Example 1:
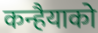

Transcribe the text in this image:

कन्हैयाको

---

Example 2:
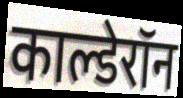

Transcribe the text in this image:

काल्डेरॉन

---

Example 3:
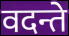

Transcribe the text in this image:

वदन्ते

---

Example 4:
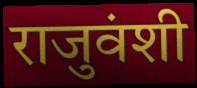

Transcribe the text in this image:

राजुवंशी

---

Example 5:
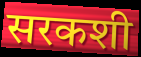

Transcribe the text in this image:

सरकशी